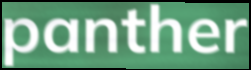
panther